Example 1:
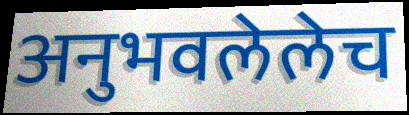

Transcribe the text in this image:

अनुभवलेलेच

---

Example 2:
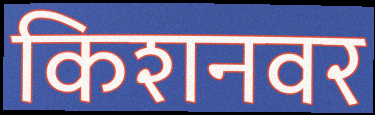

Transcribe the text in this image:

किशनवर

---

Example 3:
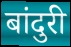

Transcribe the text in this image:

बांदुरी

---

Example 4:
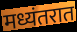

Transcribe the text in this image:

मध्यंतरात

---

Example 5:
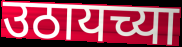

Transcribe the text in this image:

उठायच्या